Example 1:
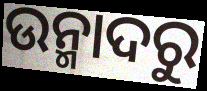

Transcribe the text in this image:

ଉନ୍ମାଦରୁ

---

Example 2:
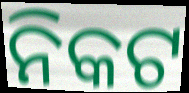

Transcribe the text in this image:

ନିକଟ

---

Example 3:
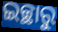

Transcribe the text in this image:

ଇଚ୍ଛାରୁ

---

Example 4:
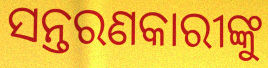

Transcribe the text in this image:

ସନ୍ତରଣକାରୀଙ୍କୁ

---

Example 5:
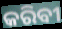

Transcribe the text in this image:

କରିବୀ